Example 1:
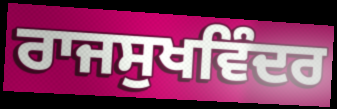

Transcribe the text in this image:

ਰਾਜਸੁਖਵਿੰਦਰ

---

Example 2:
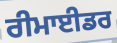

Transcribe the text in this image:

ਰੀਮਾਈਡਰ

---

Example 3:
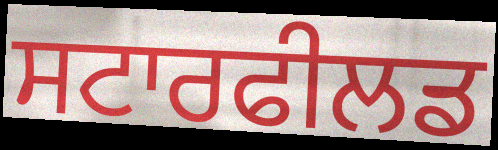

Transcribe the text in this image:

ਸਟਾਰਫੀਲਡ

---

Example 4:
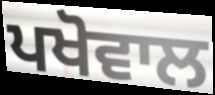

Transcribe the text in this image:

ਪਖੋਵਾਲ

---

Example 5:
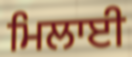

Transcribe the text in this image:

ਮਿਲਾਈ